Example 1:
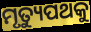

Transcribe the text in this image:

ମୃତ୍ୟୁପଥକୁ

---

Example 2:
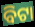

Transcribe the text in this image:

ବିଟା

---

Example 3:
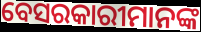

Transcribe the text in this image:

ବେସରକାରୀମାନଙ୍କ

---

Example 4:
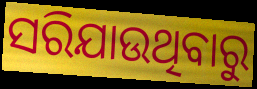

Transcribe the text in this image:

ସରିଯାଉଥିବାରୁ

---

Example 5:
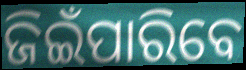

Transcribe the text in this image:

ଜିଇଁପାରିବେ